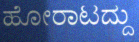
ಹೋರಾಟದ್ದು